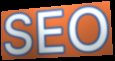
SEO